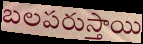
బలపరుస్తాయి